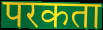
परकता